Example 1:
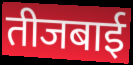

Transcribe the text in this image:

तीजबाई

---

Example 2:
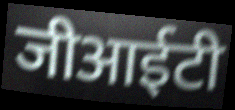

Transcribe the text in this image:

जीआईटी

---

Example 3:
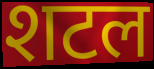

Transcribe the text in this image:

शटल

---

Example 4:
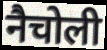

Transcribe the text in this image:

नैचोली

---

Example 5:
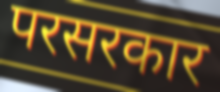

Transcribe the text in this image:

परसरकार